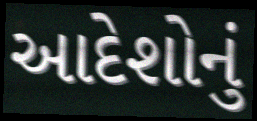
આદેશોનું